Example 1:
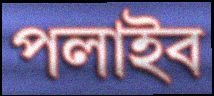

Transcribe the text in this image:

পলাইব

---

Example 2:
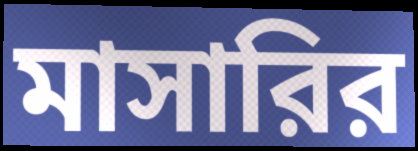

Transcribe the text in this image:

মাসারির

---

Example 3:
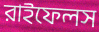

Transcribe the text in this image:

রাইফেলস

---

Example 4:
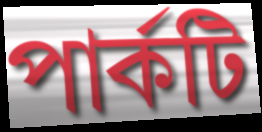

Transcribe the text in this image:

পার্কটি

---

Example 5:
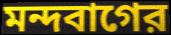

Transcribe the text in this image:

মন্দবাগের